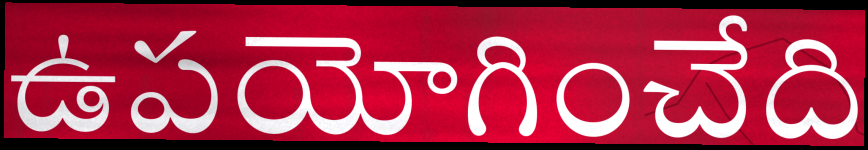
ఉపయోగించేది